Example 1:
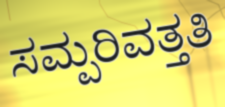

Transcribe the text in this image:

ಸಮ್ಪರಿವತ್ತತಿ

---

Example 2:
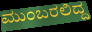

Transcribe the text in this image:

ಮುಂಬರಲಿದ್ದ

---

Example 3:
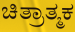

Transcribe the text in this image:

ಚಿತ್ರಾತ್ಮಕ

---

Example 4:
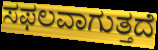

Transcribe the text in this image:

ಸಫಲವಾಗುತ್ತದೆ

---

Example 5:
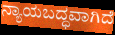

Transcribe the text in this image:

ನ್ಯಾಯಬದ್ಧವಾಗಿದೆ